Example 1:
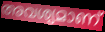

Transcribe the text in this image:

അവശ്യമാണ്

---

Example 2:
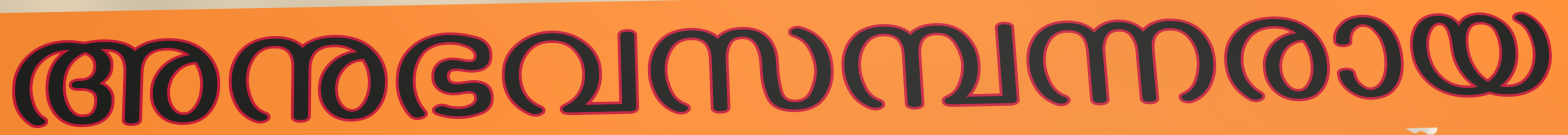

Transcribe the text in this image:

അനുഭവസമ്പന്നരായ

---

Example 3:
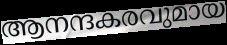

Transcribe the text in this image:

ആനന്ദകരവുമായ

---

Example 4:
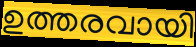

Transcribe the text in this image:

ഉത്തരവായി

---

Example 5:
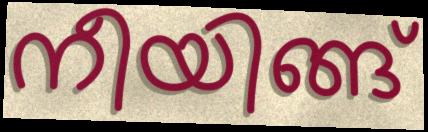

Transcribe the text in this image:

നീയിങ്ങ്